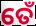
ତେଁ